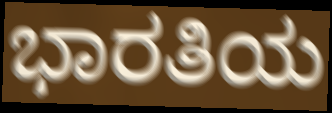
ಭಾರತಿಯ